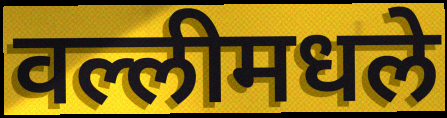
वल्लीमधले